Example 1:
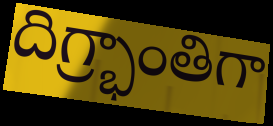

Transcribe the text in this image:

దిగ్ర్భాంతిగా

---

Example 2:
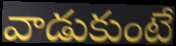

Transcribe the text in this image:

వాడుకుంటే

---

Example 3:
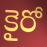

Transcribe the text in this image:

కైరో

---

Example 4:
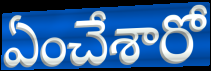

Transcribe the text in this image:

ఏంచేశారో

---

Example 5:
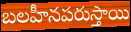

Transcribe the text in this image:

బలహీనపరుస్తాయి